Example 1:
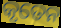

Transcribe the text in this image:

କୃତେନ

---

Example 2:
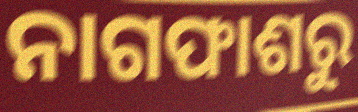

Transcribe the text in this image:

ନାଗଫାଶରୁ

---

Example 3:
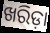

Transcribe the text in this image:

ଖରିଡ଼ା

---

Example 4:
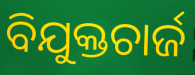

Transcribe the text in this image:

ବିଯୁକ୍ତଚାର୍ଜ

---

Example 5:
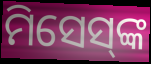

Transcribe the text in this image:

ମିସେସ୍‍ଙ୍କ